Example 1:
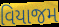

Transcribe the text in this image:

વિયાજમ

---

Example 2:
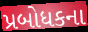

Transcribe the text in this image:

પ્રબોધકના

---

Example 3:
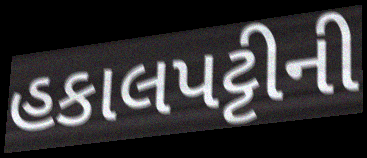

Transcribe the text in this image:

હકાલપટ્ટીની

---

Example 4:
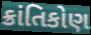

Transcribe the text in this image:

ક્રાંતિકોણ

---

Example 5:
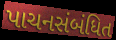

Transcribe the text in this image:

પાચનસંબંધિત